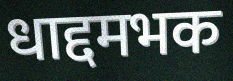
धाद्दमभक